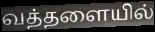
வத்தளையில்